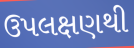
ઉપલક્ષણથી